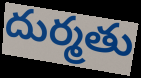
దుర్మతు